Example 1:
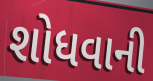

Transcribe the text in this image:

શોધવાની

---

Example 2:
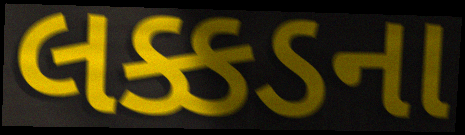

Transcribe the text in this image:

લક્કડના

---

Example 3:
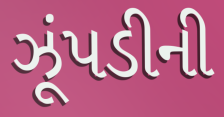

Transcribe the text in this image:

ઝૂંપડીની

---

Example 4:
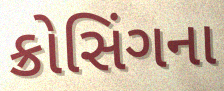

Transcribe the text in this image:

ક્રોસિંગના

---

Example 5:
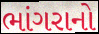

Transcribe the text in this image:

ભાંગરાનો